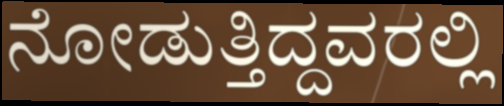
ನೋಡುತ್ತಿದ್ದವರಲ್ಲಿ